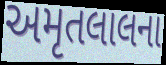
અમૃતલાલના